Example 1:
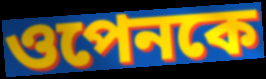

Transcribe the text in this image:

ওপেনকে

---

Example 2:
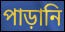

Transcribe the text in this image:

পাড়ানি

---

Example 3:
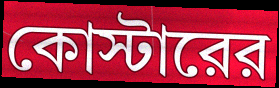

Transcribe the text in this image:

কোস্টারের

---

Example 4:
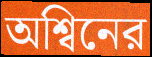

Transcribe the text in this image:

অশ্বিনের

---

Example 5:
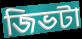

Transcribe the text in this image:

জিভটা